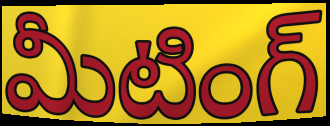
మీటింగ్